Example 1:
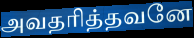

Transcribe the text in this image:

அவதரித்தவனே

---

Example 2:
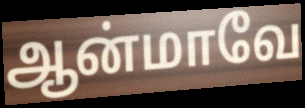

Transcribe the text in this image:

ஆன்மாவே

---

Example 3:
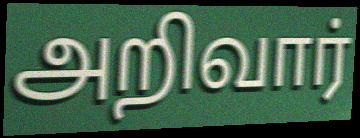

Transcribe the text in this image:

அறிவார்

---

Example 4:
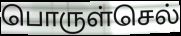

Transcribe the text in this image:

பொருள்செல்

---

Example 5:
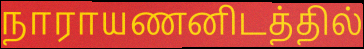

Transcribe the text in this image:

நாராயணனிடத்தில்